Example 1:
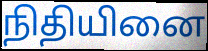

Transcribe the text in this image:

நிதியினை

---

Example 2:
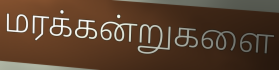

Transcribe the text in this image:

மரக்கன்றுகளை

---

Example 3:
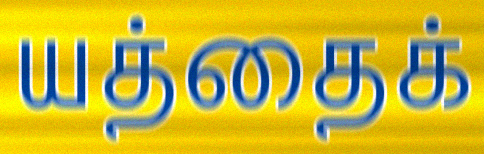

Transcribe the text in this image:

யத்தைக்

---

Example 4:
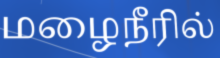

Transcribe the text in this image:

மழைநீரில்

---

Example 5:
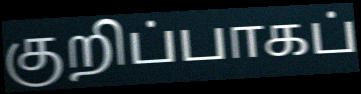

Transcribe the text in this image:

குறிப்பாகப்